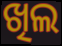
ଖିଲ